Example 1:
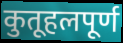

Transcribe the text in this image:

कुतूहलपूर्ण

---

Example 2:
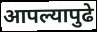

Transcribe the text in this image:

आपल्यापुढे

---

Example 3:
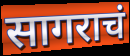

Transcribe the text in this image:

सागराचं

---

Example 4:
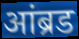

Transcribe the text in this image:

आंब्रड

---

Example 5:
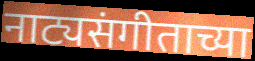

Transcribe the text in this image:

नाट्यसंगीताच्या